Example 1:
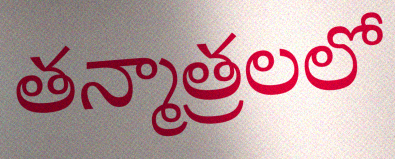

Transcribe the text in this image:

తన్మాత్రలలో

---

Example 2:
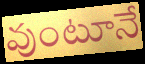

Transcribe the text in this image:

వుంటూనే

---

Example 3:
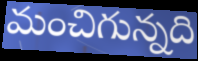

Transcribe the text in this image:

మంచిగున్నది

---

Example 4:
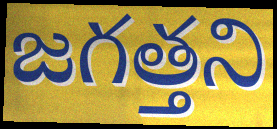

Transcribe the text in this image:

జగత్తని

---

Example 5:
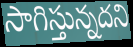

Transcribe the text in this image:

సాగిస్తున్నదని